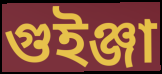
গুইঞ্জা